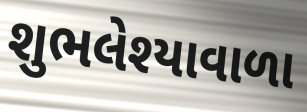
શુભલેશ્યાવાળા